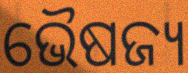
ଭୈଷଜ୍ୟ